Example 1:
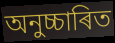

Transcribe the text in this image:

অনুচ্চাৰিত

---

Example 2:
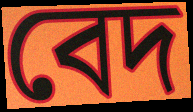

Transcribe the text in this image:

বেদ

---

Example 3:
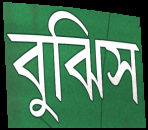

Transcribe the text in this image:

বুঝিস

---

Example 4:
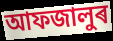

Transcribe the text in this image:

আফজালুৰ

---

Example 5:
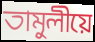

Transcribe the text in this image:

তামুলীয়ে